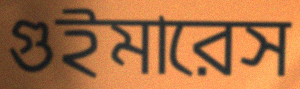
গুইমারেস